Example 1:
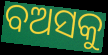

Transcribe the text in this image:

ବଅସକୁ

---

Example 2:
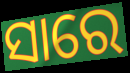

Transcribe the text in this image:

ସାରେ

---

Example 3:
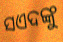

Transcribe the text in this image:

ସଏଦଙ୍କୁ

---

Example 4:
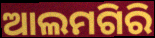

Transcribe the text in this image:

ଆଲମଗିରି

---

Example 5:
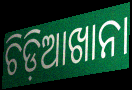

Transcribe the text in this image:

ଚିଡ଼ିଆଖାନା